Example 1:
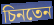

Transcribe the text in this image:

চিনতেন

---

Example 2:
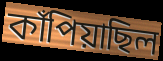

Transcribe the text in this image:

কাঁপিয়াছিল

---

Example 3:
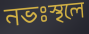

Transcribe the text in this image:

নভঃস্থলে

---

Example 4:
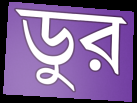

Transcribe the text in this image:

ডুর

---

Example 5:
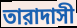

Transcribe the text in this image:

তারাদাসী